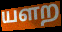
யளற